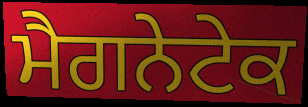
ਮੈਗਨੇਟੇਕ